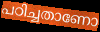
പഠിച്ചതാണോ